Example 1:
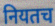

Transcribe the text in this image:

नियतच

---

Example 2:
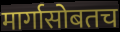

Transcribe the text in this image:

मार्गासोबतच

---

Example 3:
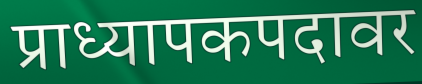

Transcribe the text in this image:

प्राध्यापकपदावर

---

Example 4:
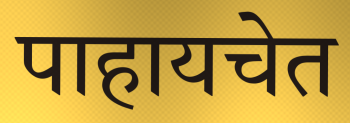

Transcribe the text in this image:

पाहायचेत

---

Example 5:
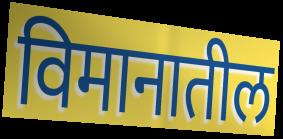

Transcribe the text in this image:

विमानातील